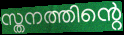
സ്തനത്തിന്റെ